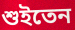
শুইতেন